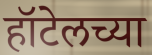
हॉटेलच्या